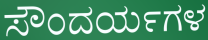
ಸೌಂದರ್ಯಗಳ